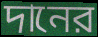
দানের